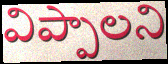
విప్పాలని